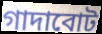
গাদাবোট